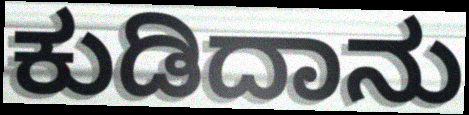
ಕುಡಿದಾನು